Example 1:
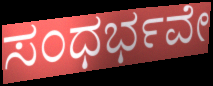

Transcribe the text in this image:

ಸಂಧರ್ಭವೇ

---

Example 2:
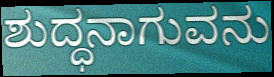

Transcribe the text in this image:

ಶುದ್ಧನಾಗುವನು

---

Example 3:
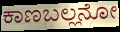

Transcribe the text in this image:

ಕಾಣಬಲ್ಲನೋ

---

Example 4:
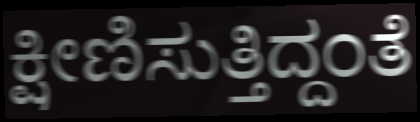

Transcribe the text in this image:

ಕ್ಷೀಣಿಸುತ್ತಿದ್ದಂತೆ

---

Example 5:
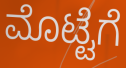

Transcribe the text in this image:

ಮೊಟ್ಟೆಗೆ